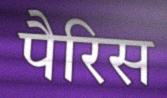
पैरिस